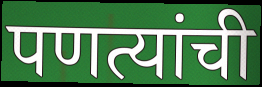
पणत्यांची